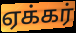
ஏக்கர்